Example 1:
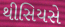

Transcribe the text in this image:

થીસિયસે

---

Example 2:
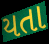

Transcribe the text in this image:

યતા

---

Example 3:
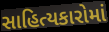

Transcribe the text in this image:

સાહિત્યકારોમાં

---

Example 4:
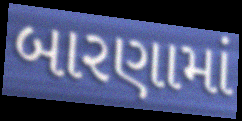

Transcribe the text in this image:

બારણામાં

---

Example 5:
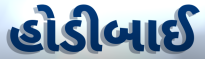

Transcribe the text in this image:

હોડીબાઈ